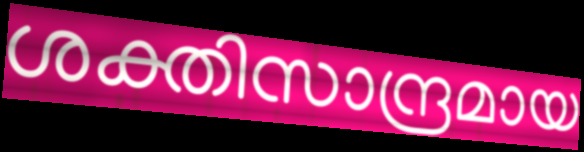
ശക്തിസാന്ദ്രമായ